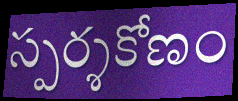
స్పర్శకోణం